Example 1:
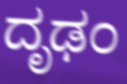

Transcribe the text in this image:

ದೃಢಂ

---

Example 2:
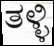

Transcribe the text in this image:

ತಳ್ಳಿ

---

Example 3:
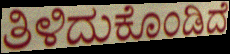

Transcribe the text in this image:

ತಿಳಿದುಕೊಂಡಿದೆ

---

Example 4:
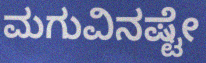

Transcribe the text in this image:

ಮಗುವಿನಷ್ಟೇ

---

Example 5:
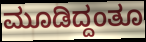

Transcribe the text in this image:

ಮೂಡಿದ್ದಂತೂ